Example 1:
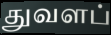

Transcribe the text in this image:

துவளப்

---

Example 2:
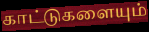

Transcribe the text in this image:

காட்டுகளையும்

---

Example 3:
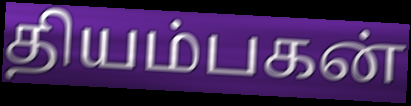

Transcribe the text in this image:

தியம்பகன்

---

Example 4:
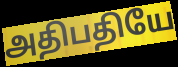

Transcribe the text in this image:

அதிபதியே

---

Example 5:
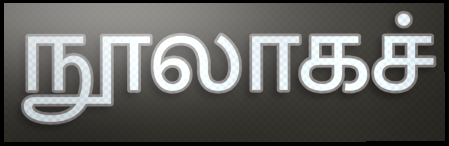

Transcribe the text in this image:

நூலாகச்